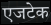
एजटेक